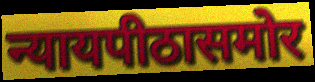
न्यायपीठासमोर